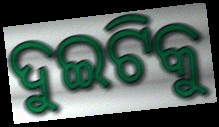
ଦୁଇଟିକୁ